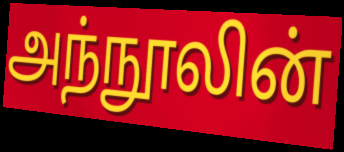
அந்நூலின்